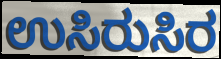
ಉಸಿರುಸಿರ